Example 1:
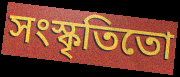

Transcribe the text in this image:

সংস্কৃতিতো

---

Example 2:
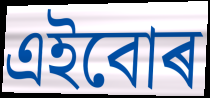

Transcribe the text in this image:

এইবোৰ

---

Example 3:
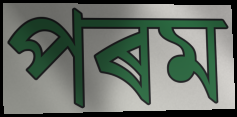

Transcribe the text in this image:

পৰম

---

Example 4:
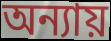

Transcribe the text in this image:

অন্যায়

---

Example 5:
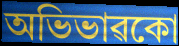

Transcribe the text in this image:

অভিভাৱকো